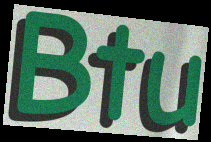
Btu